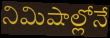
నిమిషాల్లోనే